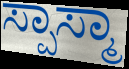
ಸ್ಪಾಸ್ಮಾ